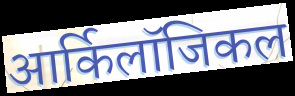
आर्किलॉजिकल